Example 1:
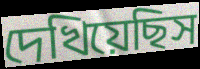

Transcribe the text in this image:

দেখিয়েছিস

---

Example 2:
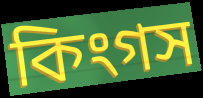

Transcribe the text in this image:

কিংগস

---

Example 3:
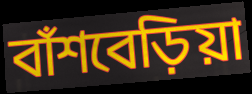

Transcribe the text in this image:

বাঁশবেড়িয়া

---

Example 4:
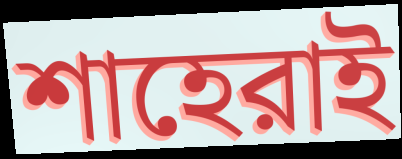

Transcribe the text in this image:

শাহেরাই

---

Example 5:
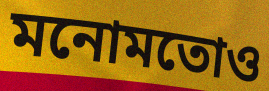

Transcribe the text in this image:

মনোমতোও